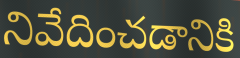
నివేదించడానికి